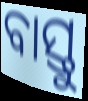
ବାସ୍ତୁ